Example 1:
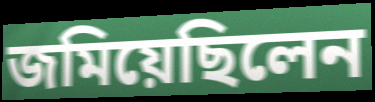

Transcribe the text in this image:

জমিয়েছিলেন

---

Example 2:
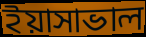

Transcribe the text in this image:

ইয়াসাভাল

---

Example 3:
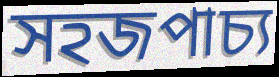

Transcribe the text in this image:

সহজপাচ্য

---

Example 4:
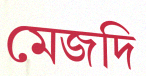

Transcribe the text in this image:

মেজদি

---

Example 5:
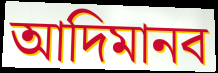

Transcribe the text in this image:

আদিমানব